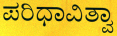
ಪರಿಧಾವಿತ್ವಾ